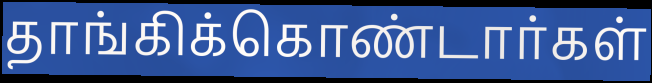
தாங்கிக்கொண்டார்கள்